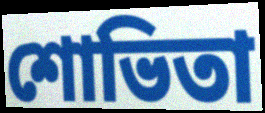
শোভিতা